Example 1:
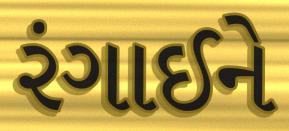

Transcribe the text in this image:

રંગાઈને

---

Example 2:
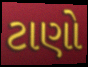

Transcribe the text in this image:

ટાણો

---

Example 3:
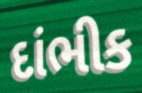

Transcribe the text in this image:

દાંભીક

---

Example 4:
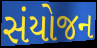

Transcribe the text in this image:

સંયોજન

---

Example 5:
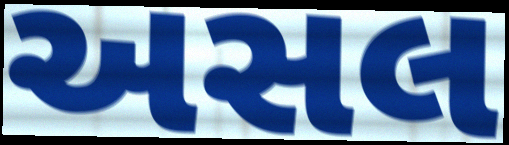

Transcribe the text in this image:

અસલ